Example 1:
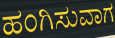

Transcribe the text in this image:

ಹಂಗಿಸುವಾಗ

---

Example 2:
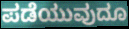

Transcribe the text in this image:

ಪಡೆಯುವುದೂ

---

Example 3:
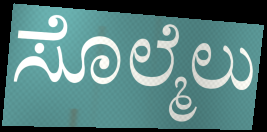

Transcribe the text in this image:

ಸೊಲ್ಮೆಲು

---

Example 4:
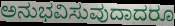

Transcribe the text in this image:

ಅನುಭವಿಸುವುದಾದರೂ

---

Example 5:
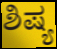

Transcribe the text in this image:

ಶಿಷ್ಯ